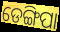
ଡେଙ୍ଗିପା